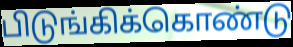
பிடுங்கிக்கொண்டு